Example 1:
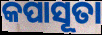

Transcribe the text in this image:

କପାସୂତା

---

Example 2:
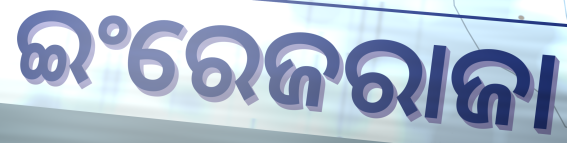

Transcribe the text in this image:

ଇଂରେଜରାଜା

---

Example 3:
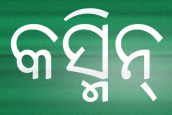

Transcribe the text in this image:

କସ୍ମିନ୍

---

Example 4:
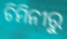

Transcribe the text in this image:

ଚିମିନୀରୁ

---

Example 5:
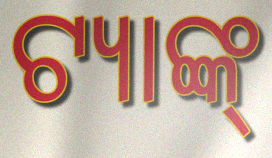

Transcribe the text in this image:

ଟ୍ୟାଙ୍କ୍